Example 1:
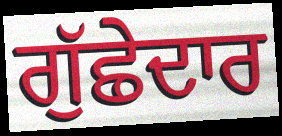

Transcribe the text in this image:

ਗੁੱਛੇਦਾਰ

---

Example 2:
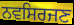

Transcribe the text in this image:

ਨਵਸਿਰਜਣ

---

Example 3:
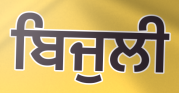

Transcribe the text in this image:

ਬਿਜੁਲੀ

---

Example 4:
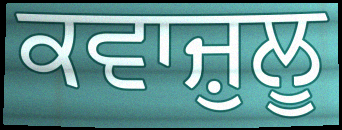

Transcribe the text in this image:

ਕਵਾਜ਼ੁਲੂ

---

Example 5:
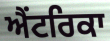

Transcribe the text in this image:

ਐਂਟਰਿਕਾ